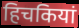
हिचकियां